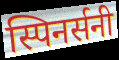
स्पिनर्सनी